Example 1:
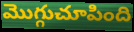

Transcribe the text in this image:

మొగ్గుచూపింది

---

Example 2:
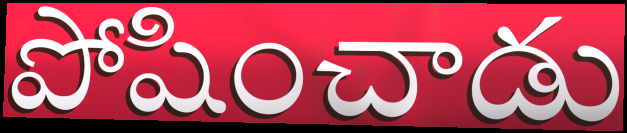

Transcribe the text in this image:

పోషించాడు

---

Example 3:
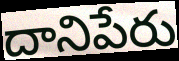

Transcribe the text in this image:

దానిపేరు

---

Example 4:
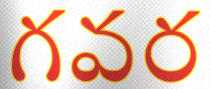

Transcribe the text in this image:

గవర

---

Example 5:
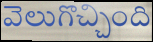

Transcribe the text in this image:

వెలుగొచ్చింది